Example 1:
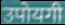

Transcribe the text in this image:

उपोयगी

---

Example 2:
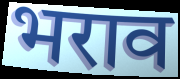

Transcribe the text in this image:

भराव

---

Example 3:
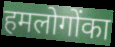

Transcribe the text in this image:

हमलोगोंका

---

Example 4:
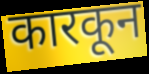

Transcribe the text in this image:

कारकून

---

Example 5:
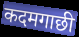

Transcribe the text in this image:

कदमगाछी